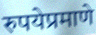
रुपयेप्रमाणे